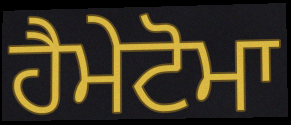
ਹੈਮੇਟੋਮਾ